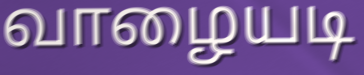
வாழையடி